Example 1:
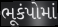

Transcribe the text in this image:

ભૂકંપોમાં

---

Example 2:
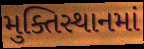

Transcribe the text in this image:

મુક્તિસ્થાનમાં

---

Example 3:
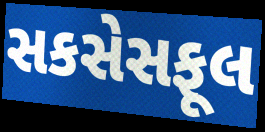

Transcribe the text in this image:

સકસેસફૂલ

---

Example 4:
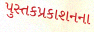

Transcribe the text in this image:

પુસ્તકપ્રકાશનના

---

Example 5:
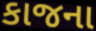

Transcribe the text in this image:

કાજના